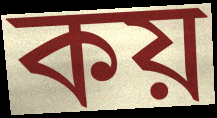
কয়